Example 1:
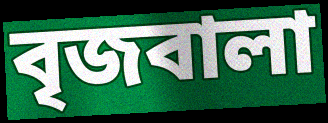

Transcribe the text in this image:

বৃজবালা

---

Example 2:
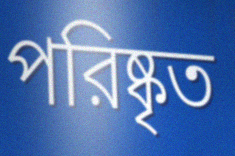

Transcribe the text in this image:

পরিষ্কৃত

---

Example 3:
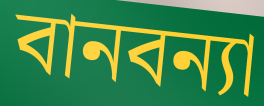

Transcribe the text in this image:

বানবন্যা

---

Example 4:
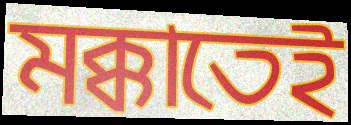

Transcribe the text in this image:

মক্কাতেই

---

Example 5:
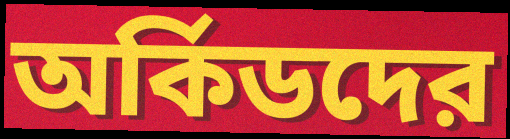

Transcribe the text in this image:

অর্কিডদের